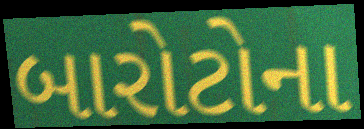
બારોટોના